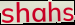
shahs